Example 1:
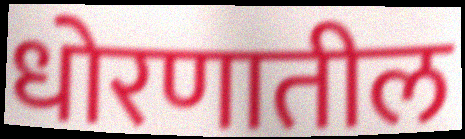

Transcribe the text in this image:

धोरणातील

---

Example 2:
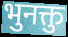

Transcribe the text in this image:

भुनक्तु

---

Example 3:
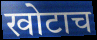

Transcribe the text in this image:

खोटाच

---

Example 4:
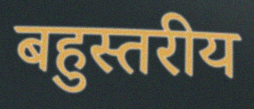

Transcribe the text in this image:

बहुस्तरीय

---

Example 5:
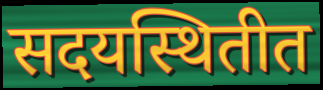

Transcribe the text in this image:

सदयस्थितीत